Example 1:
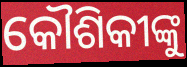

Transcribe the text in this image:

କୌଶିକୀଙ୍କୁ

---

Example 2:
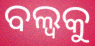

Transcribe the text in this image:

ବଲ୍ବକୁ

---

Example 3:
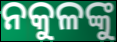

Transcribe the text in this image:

ନକୁଳଙ୍କୁ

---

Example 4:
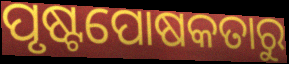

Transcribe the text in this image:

ପୃଷ୍ଟପୋଷକତାରୁ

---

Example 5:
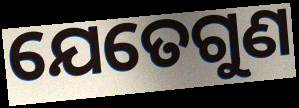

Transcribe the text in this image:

ଯେତେଗୁଣ